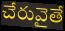
చేరువైతే